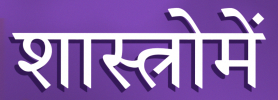
शास्त्रोमें